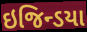
ઇજિન્ડયા